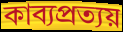
কাব্যপ্রত্যয়